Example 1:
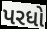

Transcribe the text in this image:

પરધો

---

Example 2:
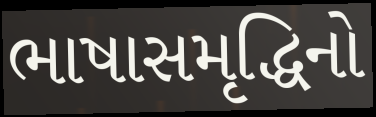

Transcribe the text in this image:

ભાષાસમૃદ્ધિનો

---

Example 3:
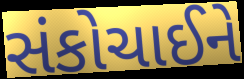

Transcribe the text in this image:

સંકોચાઈને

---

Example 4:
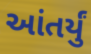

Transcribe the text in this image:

આંતર્યું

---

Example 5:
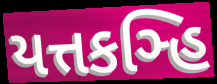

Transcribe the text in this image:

યત્તકઞ્હિ